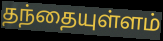
தந்தையுள்ளம்